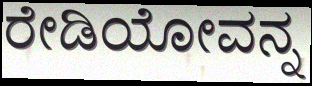
ರೇಡಿಯೋವನ್ನ